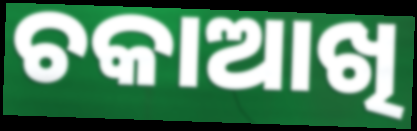
ଚକାଆଖି